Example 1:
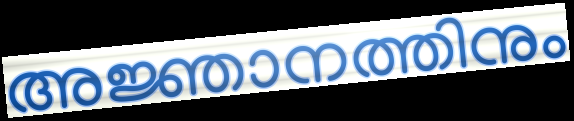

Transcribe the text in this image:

അജ്ഞാനത്തിനും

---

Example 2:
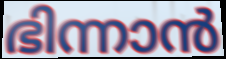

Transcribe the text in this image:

ഭിന്നാൻ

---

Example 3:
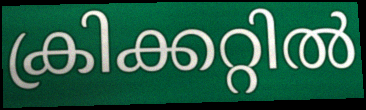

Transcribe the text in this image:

ക്രിക്കറ്റിൽ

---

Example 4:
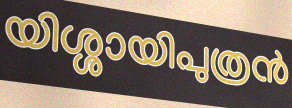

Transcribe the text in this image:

യിശ്ശായിപുത്രൻ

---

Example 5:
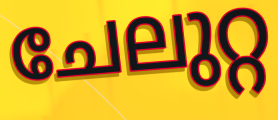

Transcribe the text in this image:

ചേലുറ്റ